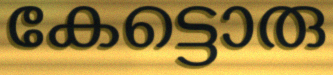
കേട്ടൊരു